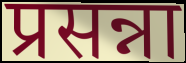
प्रसन्ना